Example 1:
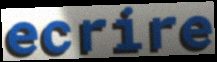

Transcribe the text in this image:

ecrire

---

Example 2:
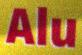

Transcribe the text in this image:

Alu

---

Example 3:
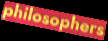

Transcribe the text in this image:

philosophers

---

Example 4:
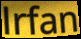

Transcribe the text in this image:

Irfan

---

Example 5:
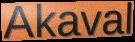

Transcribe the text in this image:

Akaval